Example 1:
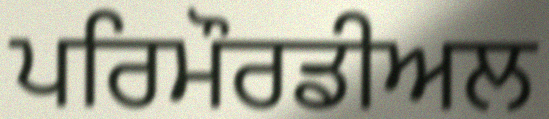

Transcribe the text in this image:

ਪਰਿਮੌਰਡੀਅਲ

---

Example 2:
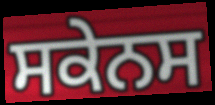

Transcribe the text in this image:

ਸਕੇਨਸ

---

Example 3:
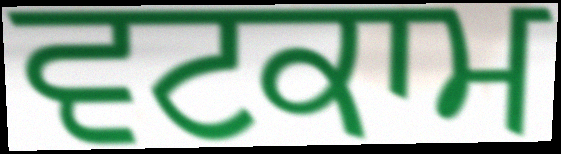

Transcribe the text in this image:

ਵਟਕਾਮ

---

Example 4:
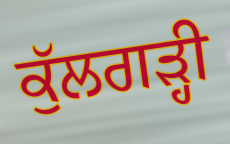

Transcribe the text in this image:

ਕੁੱਲਗੜ੍ਹੀ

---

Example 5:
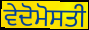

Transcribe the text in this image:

ਵੇਦੋਮੋਸਤੀ